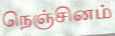
நெஞ்சினம்